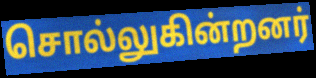
சொல்லுகின்றனர்